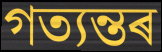
গত্যন্তৰ